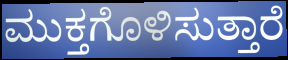
ಮುಕ್ತಗೊಳಿಸುತ್ತಾರೆ